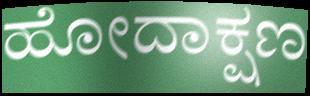
ಹೋದಾಕ್ಷಣ